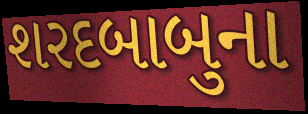
શરદબાબુના